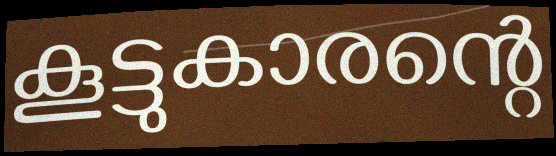
കൂട്ടുകാരന്റെ